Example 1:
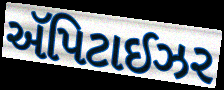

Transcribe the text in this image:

ઍપિટાઈઝર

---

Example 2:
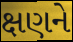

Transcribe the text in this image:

ક્ષણને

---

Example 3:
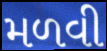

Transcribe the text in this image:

મળવી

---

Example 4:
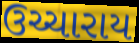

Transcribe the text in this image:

ઉચ્ચારાય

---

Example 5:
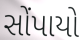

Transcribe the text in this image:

સોંપાયો